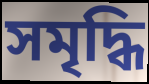
সমৃদ্ধি